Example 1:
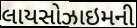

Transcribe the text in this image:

લાયસોઝાઇમની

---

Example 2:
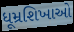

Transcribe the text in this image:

ધૂમ્રશિખાઓ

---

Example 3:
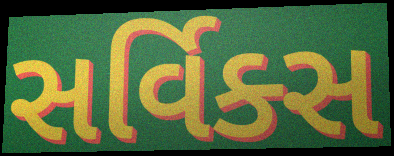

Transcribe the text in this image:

સર્વિક્સ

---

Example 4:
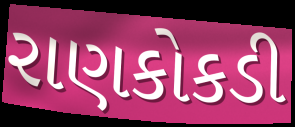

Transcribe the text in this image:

રાણકોકડી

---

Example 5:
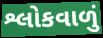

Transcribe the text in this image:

શ્લોકવાળું